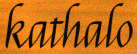
kathalo